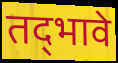
तद्भावे